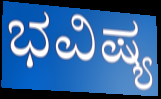
ಭವಿಷ್ಯ